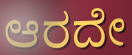
ಆರದೇ